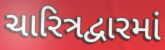
ચારિત્રદ્વારમાં